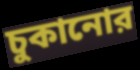
চুকানোর